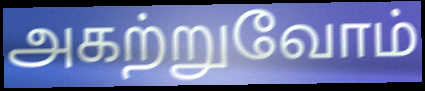
அகற்றுவோம்